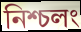
নিশ্চলং